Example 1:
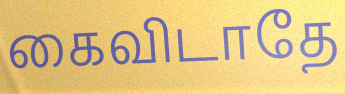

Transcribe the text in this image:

கைவிடாதே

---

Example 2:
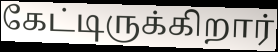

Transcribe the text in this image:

கேட்டிருக்கிறார்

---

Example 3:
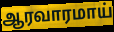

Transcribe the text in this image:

ஆரவாரமாய்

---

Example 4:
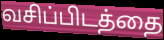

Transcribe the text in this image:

வசிப்பிடத்தை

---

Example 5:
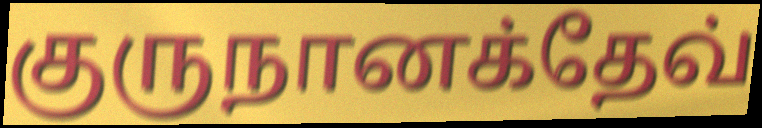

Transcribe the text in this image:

குருநானக்தேவ்